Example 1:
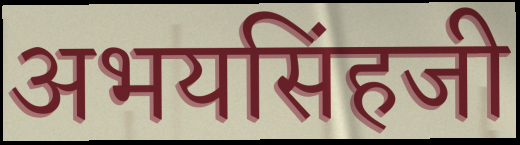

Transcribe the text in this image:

अभयसिंहजी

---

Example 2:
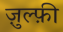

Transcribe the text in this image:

ज़ुल्फ़ी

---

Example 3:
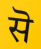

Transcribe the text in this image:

सॆ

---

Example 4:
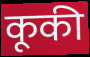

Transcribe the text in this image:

कूकी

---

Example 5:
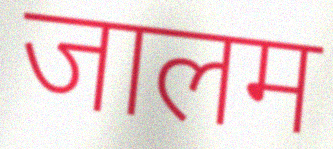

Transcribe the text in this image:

जालम